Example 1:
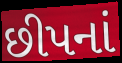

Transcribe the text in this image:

છીપનાં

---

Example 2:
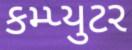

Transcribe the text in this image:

કમ્પ્યુટર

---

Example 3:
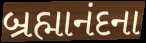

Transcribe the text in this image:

બ્રહ્માનંદના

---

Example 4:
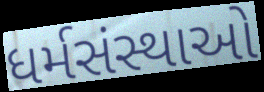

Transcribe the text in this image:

ધર્મસંસ્થાઓ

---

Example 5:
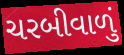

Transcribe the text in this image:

ચરબીવાળું